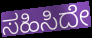
ಸಹಿಸಿದೇ